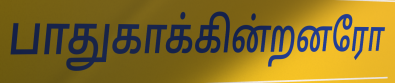
பாதுகாக்கின்றனரோ